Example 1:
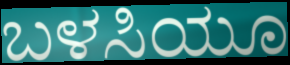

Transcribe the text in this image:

ಬಳಸಿಯೂ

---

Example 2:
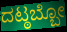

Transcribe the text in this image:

ದಟ್ಠಬ್ಬೋ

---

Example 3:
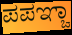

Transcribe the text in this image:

ಪಪಞ್ಚಾ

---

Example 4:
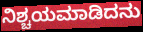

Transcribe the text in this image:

ನಿಶ್ಚಯಮಾಡಿದನು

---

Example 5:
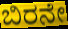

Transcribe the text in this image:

ಬಿರನೇ